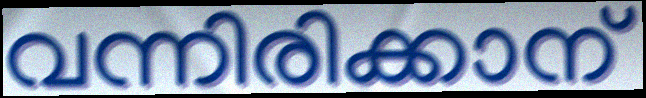
വന്നിരിക്കാന്